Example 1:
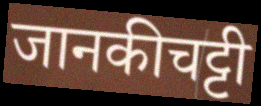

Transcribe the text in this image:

जानकीचट्टी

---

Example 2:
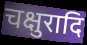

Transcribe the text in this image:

चक्षुरादि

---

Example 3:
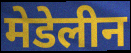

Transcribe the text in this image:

मेडेलीन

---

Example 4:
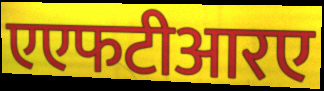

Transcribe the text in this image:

एएफटीआरए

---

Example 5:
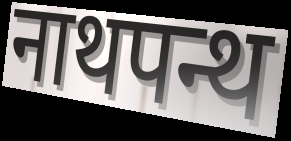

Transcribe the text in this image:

नाथपन्थ